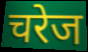
चरेज